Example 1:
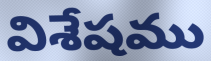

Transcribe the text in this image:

విశేషము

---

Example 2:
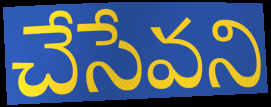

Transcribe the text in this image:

చేసేవని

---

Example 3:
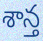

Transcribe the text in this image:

శాన్త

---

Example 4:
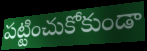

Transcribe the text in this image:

పట్టించుకోకుండా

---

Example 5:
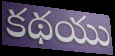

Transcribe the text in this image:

కథయు